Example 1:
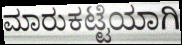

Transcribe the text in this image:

ಮಾರುಕಟ್ಟೆಯಾಗಿ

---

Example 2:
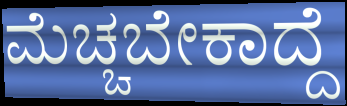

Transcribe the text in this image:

ಮೆಚ್ಚಬೇಕಾದ್ದೆ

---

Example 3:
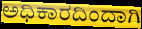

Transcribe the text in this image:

ಅಧಿಕಾರದಿಂದಾಗಿ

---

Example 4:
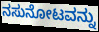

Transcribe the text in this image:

ನಸುನೋಟವನ್ನು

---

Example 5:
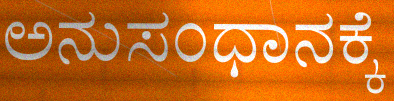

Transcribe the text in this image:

ಅನುಸಂಧಾನಕ್ಕೆ